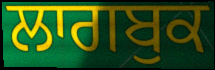
ਲਾਗਬੁਕ